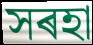
সৰহা